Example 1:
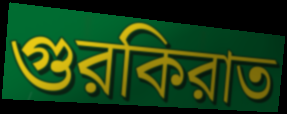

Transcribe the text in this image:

গুরকিরাত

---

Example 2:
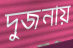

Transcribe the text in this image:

দুজনায়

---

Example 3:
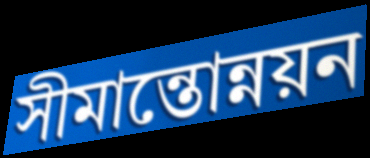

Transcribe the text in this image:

সীমান্তোন্নয়ন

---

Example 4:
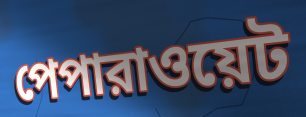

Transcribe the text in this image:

পেপারাওয়েট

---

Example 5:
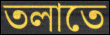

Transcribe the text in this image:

তলাতে